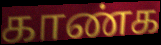
காண்க